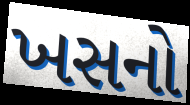
ખસનો